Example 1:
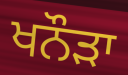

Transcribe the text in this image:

ਖਨੌੜਾ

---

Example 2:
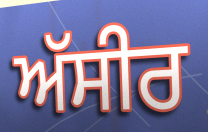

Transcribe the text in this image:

ਅੱਸੀਰ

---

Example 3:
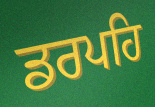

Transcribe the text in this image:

ਡਰਪਹਿ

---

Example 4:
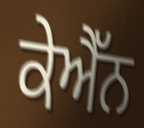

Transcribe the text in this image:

ਕੇਐੱਨ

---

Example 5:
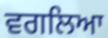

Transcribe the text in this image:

ਵਗਲਿਆ